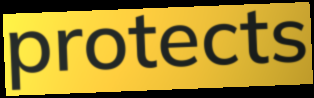
protects